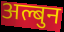
अल्बुन